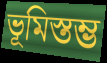
ভূমিস্তম্ভ